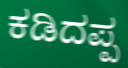
ಕಡಿದಪ್ಪ